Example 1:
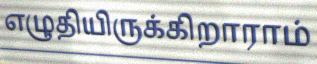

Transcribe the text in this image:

எழுதியிருக்கிறாராம்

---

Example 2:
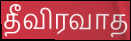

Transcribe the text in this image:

தீவிரவாத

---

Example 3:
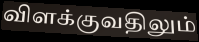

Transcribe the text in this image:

விளக்குவதிலும்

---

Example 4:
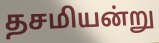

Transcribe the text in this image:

தசமியன்று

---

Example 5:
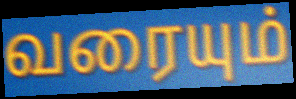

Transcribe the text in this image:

வரையும்